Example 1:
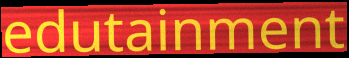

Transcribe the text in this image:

edutainment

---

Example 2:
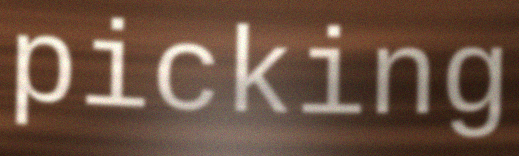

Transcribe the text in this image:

picking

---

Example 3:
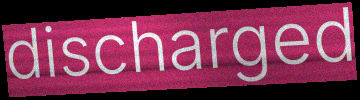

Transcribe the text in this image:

discharged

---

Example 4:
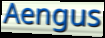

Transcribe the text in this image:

Aengus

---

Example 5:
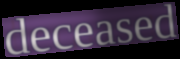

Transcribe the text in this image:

deceased